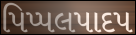
પિપ્પલપાદપ